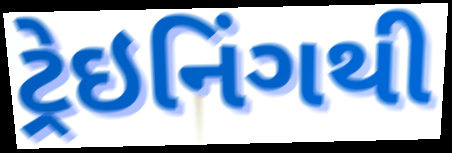
ટ્રેઇનિંગથી